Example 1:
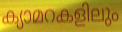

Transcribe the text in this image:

ക്യാമറകളിലും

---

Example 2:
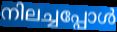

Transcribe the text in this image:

നിലച്ചപ്പോൾ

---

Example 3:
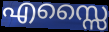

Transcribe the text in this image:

എസ്സൈ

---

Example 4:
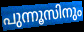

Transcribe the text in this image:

പുന്നൂസിനും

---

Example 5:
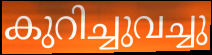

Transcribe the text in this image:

കുറിച്ചുവച്ചു